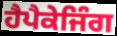
ਹੈਪੈਕੇਜਿੰਗ